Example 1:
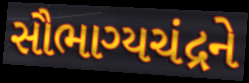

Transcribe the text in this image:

સૌભાગ્યચંદ્રને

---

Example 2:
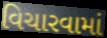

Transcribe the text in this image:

વિચારવામાં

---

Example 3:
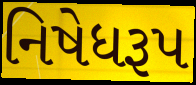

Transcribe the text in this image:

નિષેધરૂપ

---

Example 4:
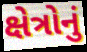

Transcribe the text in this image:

ક્ષેત્રોનું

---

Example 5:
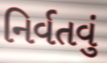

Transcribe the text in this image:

નિર્વતવું